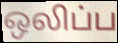
ஒலிப்ப